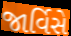
જાર્વિસે